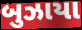
બુઝાયા